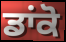
ਡਾਂਕੋ